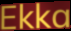
Ekka